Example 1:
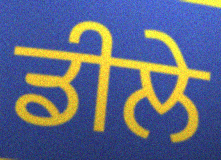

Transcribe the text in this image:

ਡੀਲੇ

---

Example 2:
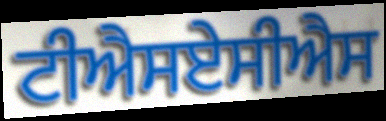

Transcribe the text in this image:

ਟੀਐਸਏਸੀਐਸ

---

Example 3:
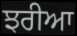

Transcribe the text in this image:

ਝਰੀਆ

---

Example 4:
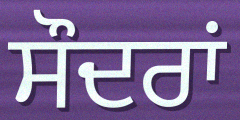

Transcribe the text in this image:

ਸੌਦਰਾਂ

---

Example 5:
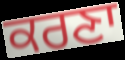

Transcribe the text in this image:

ਕਰਣਾ